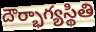
దౌర్భాగ్యస్థితి